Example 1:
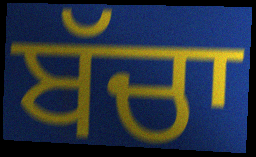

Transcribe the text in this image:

ਬੱਚਾ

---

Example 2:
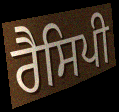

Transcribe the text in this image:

ਰੈਸਿਪੀ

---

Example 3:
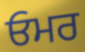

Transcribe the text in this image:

ਓਮਰ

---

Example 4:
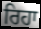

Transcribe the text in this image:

ਰਿਹਾ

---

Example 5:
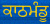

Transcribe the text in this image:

ਕਾਠਮੰਡੂ